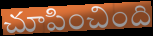
చూపించింది